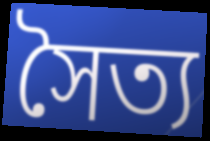
সৈত্য